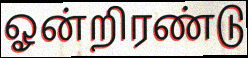
ஓன்றிரண்டு